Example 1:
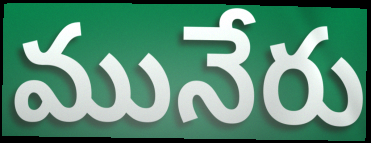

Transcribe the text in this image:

మునేరు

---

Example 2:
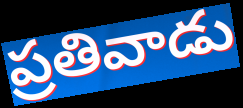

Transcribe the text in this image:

ప్రతివాడు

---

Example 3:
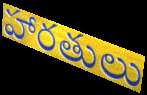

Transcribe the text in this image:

హారతులు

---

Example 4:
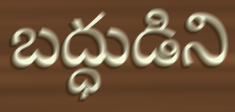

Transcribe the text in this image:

బద్ధుడిని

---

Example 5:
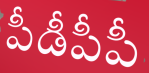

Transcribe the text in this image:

పీడీపీపీ